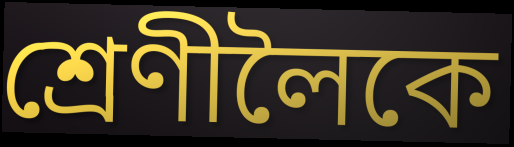
শ্ৰেণীলৈকে